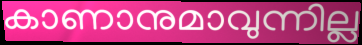
കാണാനുമാവുന്നില്ല